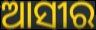
ଆସୀର